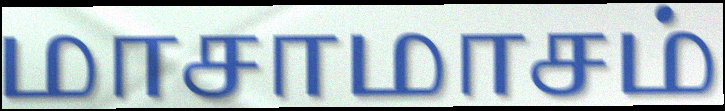
மாசாமாசம்